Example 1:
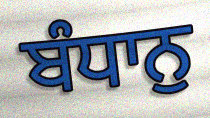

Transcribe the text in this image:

ਬੰਧਾਨੁ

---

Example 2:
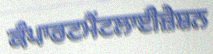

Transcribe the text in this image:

ਕੰਪਾਰਟਮੈਂਟਲਾਈਜ਼ੇਸ਼ਨ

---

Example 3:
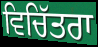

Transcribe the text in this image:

ਵਿਚਿੱਤਰਾ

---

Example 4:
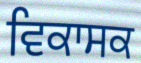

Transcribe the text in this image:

ਵਿਕਾਸਕ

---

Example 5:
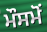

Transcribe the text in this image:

ਮੌਸਮੋਂ